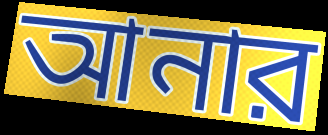
আনার